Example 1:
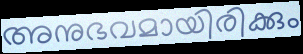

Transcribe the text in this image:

അനുഭവമായിരിക്കും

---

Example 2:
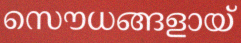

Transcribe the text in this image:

സൌധങ്ങളായ്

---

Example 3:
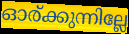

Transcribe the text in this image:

ഓര്ക്കുന്നില്ലേ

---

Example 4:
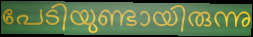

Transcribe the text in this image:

പേടിയുണ്ടായിരുന്നു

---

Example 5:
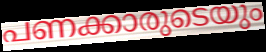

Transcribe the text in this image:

പണക്കാരുടെയും